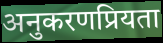
अनुकरणप्रियता